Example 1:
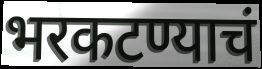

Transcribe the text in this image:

भरकटण्याचं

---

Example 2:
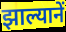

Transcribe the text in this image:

झाल्यानें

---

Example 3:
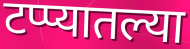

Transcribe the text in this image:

टप्प्यातल्या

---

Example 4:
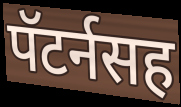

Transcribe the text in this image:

पॅटर्नसह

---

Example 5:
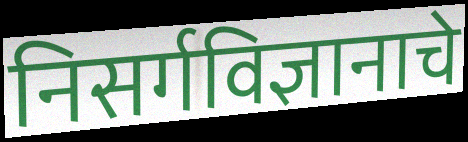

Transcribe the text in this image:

निसर्गविज्ञानाचे